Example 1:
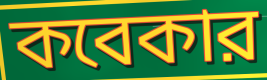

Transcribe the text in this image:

কবেকার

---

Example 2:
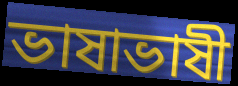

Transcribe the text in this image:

ভাষাভাষী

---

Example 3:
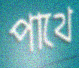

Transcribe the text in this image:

পাথে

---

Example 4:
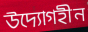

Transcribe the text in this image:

উদ্যোগহীন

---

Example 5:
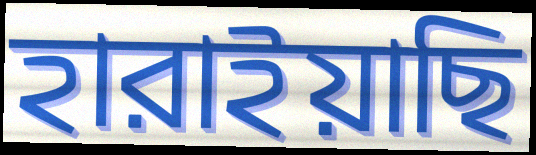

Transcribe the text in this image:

হারাইয়াছি